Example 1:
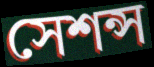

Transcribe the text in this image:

সেশন্স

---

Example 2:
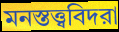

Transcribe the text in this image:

মনস্তত্ত্ববিদরা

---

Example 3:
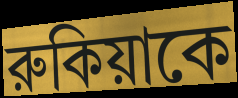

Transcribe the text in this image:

রুকিয়াকে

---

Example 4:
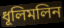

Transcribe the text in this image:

ধূলিমলিন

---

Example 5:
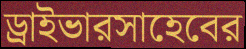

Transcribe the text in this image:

ড্রাইভারসাহেবের